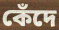
কেঁদে